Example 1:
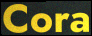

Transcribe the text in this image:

Cora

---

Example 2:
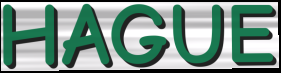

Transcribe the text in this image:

HAGUE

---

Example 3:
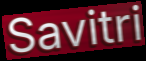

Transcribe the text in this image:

Savitri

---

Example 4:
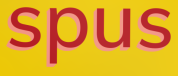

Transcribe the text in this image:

spus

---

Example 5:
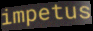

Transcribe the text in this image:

impetus